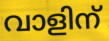
വാളിന്